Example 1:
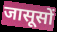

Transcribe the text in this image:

जासूसों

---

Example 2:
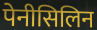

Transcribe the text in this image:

पेनीसिलिन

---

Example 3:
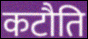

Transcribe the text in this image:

कटौति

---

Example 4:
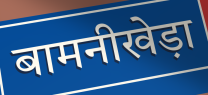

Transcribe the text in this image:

बामनीखेड़ा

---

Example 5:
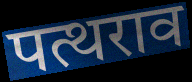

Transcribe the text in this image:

पत्थराव